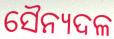
ସୈନ୍ୟଦଳ